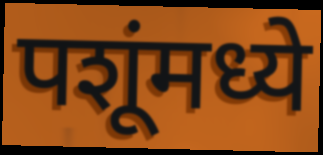
पशूंमध्ये